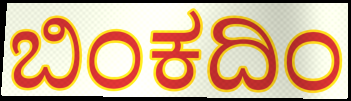
ಬಿಂಕದಿಂ